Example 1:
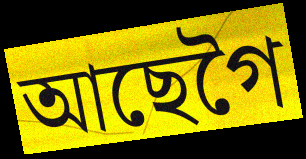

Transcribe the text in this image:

আছেগৈ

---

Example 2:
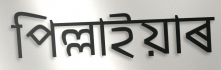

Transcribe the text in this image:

পিল্লাইয়াৰ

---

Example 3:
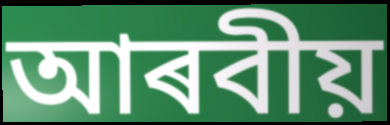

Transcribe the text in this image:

আৰবীয়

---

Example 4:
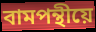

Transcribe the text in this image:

বামপন্থীয়ে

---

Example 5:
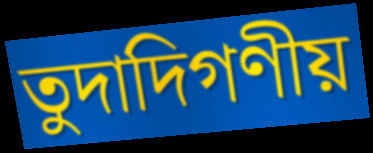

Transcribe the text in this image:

তুদাদিগণীয়